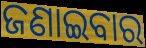
ଜଣାଇବାର